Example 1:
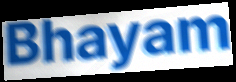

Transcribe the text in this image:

Bhayam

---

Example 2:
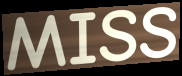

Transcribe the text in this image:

MISS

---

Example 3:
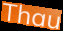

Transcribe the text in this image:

Thau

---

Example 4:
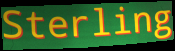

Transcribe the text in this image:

Sterling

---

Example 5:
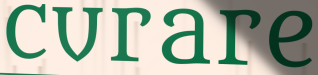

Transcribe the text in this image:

curare